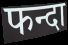
फन्दा